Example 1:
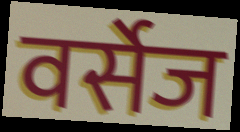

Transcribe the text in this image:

वर्सेज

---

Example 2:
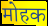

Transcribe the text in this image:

मोहक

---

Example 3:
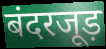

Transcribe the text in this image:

बंदरजूड़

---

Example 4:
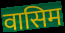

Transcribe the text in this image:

वासिम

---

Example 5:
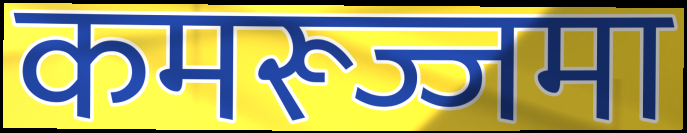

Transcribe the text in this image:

कमरूज्जमा